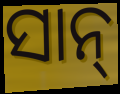
ସାନ୍